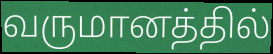
வருமானத்தில்